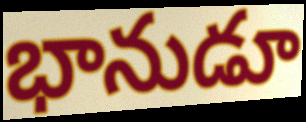
భానుడూ